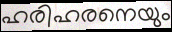
ഹരിഹരനെയും